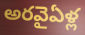
అరవైఏళ్ల